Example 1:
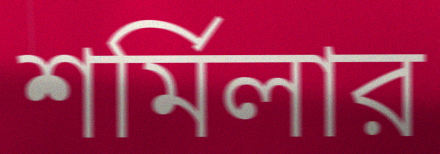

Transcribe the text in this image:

শর্মিলার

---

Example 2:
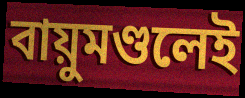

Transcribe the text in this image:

বায়ুমণ্ডলেই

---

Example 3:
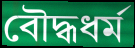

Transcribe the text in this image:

বৌদ্ধধর্ম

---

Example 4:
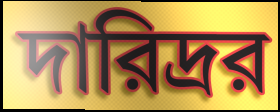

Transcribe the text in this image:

দারিদ্রর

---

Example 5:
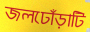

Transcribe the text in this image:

জলঢোঁড়াটি